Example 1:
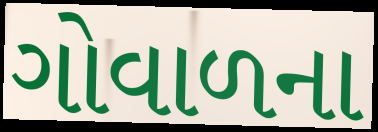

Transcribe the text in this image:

ગોવાળના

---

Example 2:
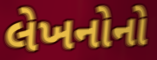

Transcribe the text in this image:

લેખનોનો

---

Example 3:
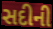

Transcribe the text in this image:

સદીની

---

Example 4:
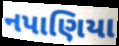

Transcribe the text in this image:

નપાણિયા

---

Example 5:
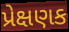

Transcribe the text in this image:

પ્રેક્ષણક